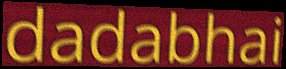
dadabhai